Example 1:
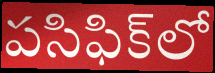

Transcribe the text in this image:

పసిఫిక్‌లో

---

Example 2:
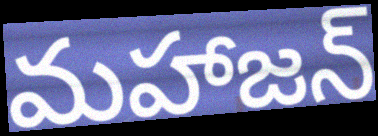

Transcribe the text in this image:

మహాజన్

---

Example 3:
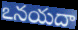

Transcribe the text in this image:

ఽనయదా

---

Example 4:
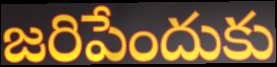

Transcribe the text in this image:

జరిపేందుకు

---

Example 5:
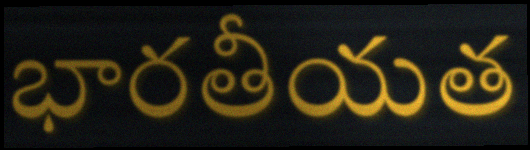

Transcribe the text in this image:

భారతీయత